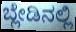
ಬ್ಲೇಡಿನಲ್ಲಿ